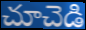
చూచెడి